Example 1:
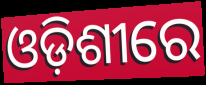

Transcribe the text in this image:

ଓଡ଼ିଶୀରେ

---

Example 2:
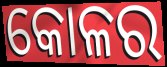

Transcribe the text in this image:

କୋଳର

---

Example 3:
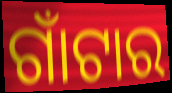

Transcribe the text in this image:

ଗାଁଟାର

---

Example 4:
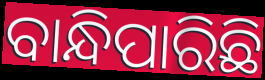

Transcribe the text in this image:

ବାନ୍ଧିପାରିଛି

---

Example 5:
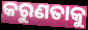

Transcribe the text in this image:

କରୁଣତାକୁ